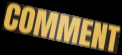
COMMENT